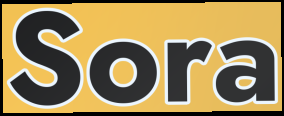
Sora